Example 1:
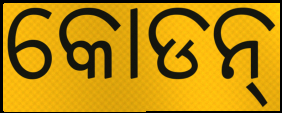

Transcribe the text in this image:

କୋଡନ୍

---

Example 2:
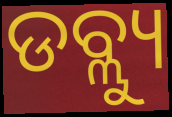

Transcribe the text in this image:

ଡବ୍ଲ୍ୟୁ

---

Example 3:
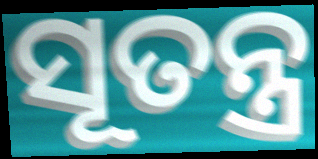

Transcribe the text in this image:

ସୂତନ୍ତ୍ର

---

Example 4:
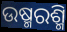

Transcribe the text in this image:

ଉଷ୍ମରଶ୍ମି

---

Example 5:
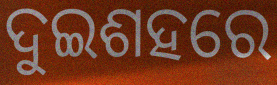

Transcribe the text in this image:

ଦୁଇଶହରେ